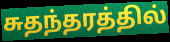
சுதந்தரத்தில்